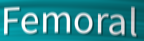
Femoral